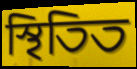
স্থিতিত